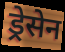
ड्रेसेन